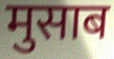
मुसाब